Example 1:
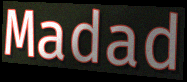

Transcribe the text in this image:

Madad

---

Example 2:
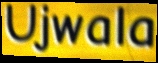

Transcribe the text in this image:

Ujwala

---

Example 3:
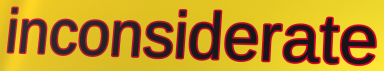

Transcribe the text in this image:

inconsiderate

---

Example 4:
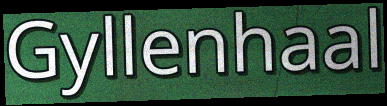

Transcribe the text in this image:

Gyllenhaal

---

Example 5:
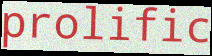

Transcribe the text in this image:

prolific